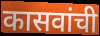
कासवांची